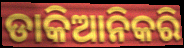
ଡାକିଆନିକରି